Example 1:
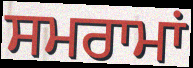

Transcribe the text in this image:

ਸਮਰਾਮਾਂ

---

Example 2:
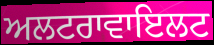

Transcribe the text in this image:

ਅਲਟਰਾਵਾਇਲਟ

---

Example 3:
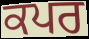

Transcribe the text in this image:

ਕਪਰ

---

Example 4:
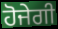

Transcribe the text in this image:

ਹੋਜੇਗੀ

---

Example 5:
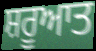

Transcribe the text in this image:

ਸ਼ਰੂਆਤ